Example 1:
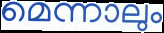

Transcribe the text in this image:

മെന്നാലും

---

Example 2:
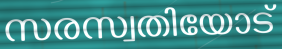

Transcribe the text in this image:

സരസ്വതിയോട്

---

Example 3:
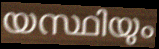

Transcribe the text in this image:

യസ്ഥിയും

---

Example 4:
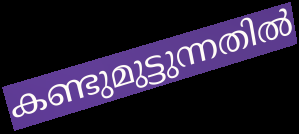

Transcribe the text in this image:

കണ്ടുമുട്ടുന്നതിൽ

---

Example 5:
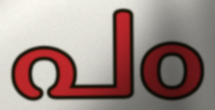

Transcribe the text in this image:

പം